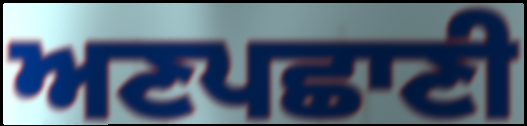
ਅਣਪਛਾਣੀ